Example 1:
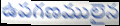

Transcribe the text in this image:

ఉపగణములైన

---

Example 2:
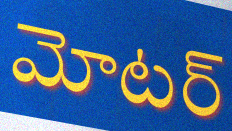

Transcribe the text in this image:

మోటర్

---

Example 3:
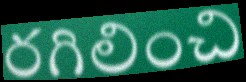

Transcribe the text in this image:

రగిలించి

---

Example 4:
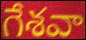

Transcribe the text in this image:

గేశవా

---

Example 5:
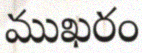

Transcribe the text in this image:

ముఖరం